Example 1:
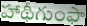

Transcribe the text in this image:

హాథీగుంఫా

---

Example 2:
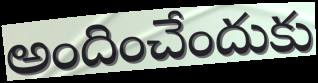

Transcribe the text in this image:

అందించేందుకు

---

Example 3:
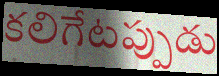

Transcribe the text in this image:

కలిగేటప్పుడు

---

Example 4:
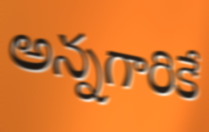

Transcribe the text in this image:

అన్నగారికే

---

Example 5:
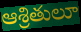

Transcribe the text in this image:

ఆశ్రితులూ